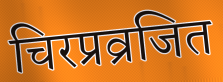
चिरप्रव्रजित